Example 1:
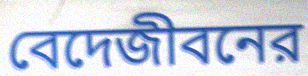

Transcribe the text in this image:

বেদেজীবনের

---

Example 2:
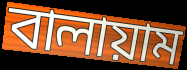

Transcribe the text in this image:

বালায়াম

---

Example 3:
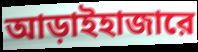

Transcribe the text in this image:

আড়াইহাজারে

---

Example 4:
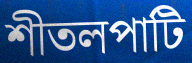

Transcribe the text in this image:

শীতলপাটি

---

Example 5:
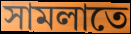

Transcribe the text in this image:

সামলাতে